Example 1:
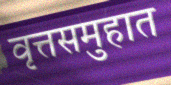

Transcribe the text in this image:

वृत्तसमुहात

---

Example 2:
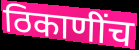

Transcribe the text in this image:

ठिकाणींच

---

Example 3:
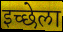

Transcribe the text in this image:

इच्छेला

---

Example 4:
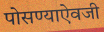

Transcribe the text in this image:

पोसण्याऐवजी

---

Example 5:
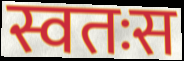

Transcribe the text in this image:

स्वतःस